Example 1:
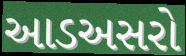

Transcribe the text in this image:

આડઅસરો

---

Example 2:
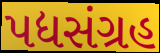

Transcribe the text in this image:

પદ્યસંગ્રહ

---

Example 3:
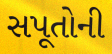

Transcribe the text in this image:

સપૂતોની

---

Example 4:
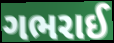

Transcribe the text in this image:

ગભરાઈ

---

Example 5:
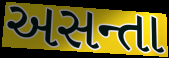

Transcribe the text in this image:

અસન્તા